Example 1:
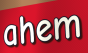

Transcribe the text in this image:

ahem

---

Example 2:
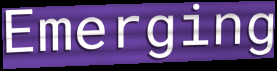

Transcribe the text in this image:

Emerging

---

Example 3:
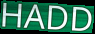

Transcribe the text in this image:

HADD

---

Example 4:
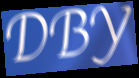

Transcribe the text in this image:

DBY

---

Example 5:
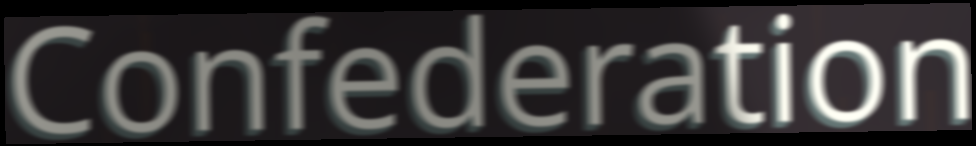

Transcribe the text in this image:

Confederation